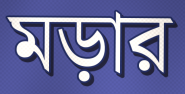
মড়ার